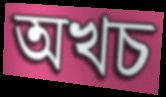
অখচ